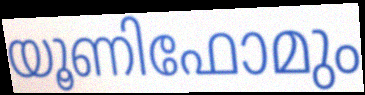
യൂണിഫോമും